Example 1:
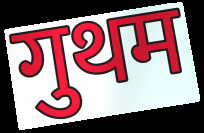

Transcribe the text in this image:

गुथम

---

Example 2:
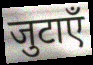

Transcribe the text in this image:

जुटाएँ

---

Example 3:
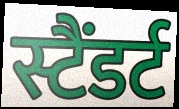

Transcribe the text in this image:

स्टैंडर्ट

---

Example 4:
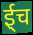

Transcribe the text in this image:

ई्च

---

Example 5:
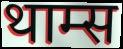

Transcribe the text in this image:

थाम्स